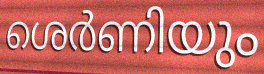
ശെർണിയും